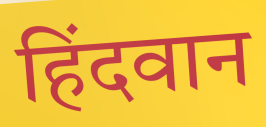
हिंदवान